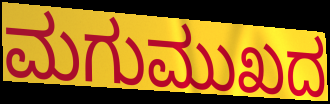
ಮಗುಮುಖದ